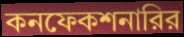
কনফেকশনারির